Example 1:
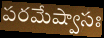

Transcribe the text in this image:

పరమేష్వాసః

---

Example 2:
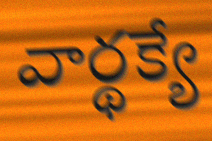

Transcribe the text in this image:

వార్థక్యే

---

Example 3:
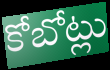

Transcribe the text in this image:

కోబోట్లు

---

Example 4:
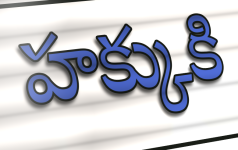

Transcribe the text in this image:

హక్కుకి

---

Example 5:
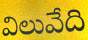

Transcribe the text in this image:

విలువేది